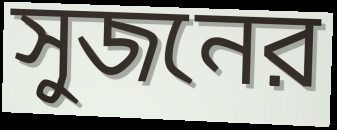
সুজনের